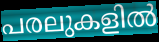
പരലുകളിൽ